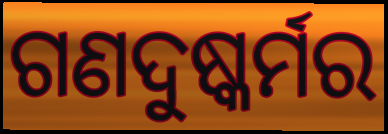
ଗଣଦୁଷ୍କର୍ମର